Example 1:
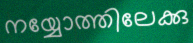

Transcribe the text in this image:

നയ്യോത്തിലേക്കു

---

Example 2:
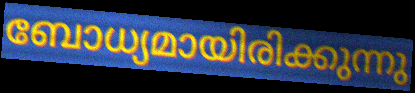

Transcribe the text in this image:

ബോധ്യമായിരിക്കുന്നു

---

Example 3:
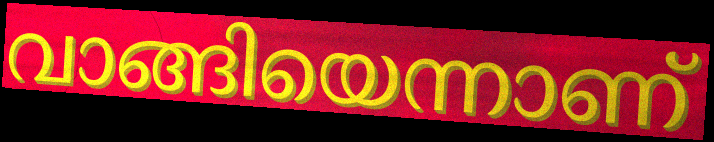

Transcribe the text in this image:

വാങ്ങിയെന്നാണ്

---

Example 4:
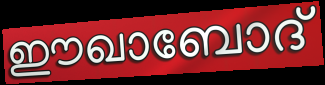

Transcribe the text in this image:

ഈഖാബോദ്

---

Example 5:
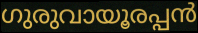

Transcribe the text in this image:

ഗുരുവായൂരപ്പൻ